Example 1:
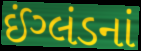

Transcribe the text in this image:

ઈંગ્લંડનાં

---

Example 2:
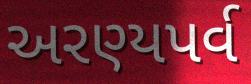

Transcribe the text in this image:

અરણ્યપર્વ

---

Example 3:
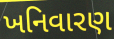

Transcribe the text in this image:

ખનિવારણ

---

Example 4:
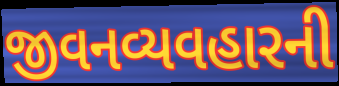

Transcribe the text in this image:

જીવનવ્યવહારની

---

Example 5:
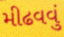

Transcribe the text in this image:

મીઢવવું